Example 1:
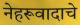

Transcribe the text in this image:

नेहरूवादाचे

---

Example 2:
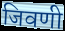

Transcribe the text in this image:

जिवणी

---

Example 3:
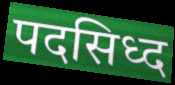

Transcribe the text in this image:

पदसिध्द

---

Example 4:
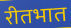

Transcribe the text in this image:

रीतभात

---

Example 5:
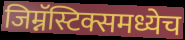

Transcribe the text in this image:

जिम्नॅस्टिक्समध्येच